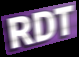
RDT